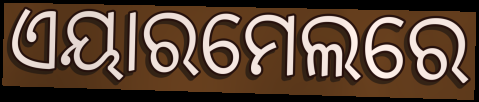
ଏୟାରମେଲରେ